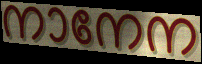
നാനേന